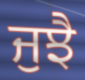
ਜੁਝੈ